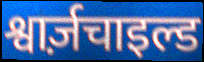
श्वार्ज़चाइल्ड